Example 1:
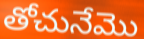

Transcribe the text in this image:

తోచునేమొ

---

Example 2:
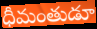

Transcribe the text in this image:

ధీమంతుడూ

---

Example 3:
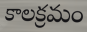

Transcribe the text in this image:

కాలక్రమం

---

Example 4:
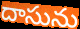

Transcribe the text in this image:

దాసును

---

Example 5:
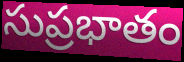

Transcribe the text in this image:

సుప్రభాతం